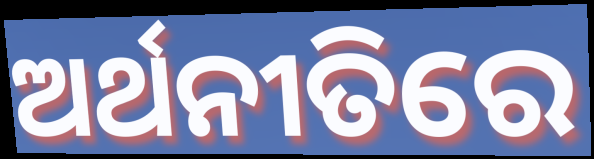
ଅର୍ଥନୀତିରେ